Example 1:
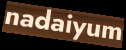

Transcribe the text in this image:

nadaiyum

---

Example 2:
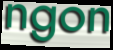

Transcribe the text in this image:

ngon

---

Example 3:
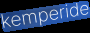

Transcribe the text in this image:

kemperide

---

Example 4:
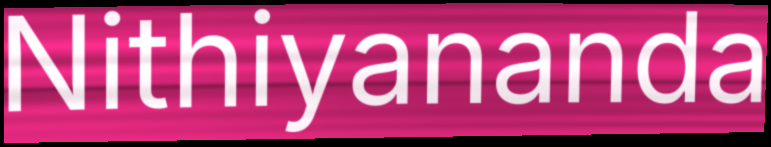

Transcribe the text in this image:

Nithiyananda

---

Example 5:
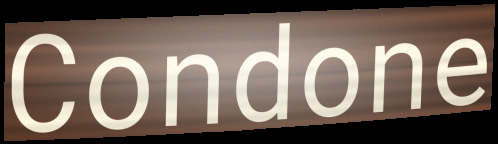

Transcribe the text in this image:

Condone